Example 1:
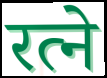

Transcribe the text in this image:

रत्ने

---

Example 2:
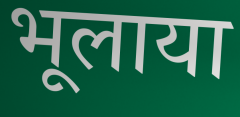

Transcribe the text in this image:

भूलाया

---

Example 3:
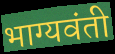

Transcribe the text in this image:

भाग्यवंती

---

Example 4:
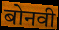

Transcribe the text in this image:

बोनवी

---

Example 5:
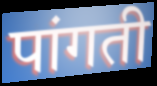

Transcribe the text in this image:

पांगती